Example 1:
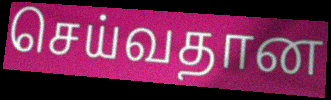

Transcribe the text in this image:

செய்வதான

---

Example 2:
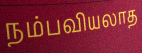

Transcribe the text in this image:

நம்பவியலாத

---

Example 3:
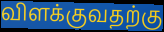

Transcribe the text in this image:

விளக்குவதற்கு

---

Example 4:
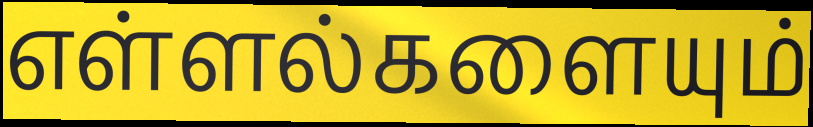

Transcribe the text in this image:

எள்ளல்களையும்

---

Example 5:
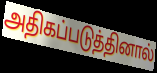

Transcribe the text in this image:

அதிகப்படுத்தினால்